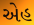
એહ